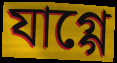
যাগ্গে